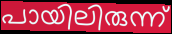
പായിലിരുന്ന്